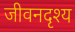
जीवनदृश्य